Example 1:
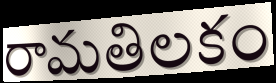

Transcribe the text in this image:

రామతిలకం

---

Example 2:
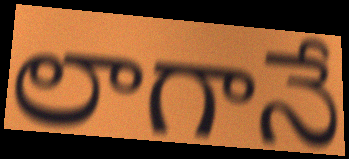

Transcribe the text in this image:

లాగానే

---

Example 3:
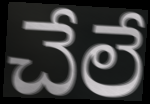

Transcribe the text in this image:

చేలే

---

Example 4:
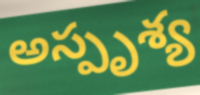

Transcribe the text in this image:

అస్పృశ్య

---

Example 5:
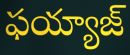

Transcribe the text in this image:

ఫయ్యాజ్